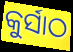
କୁର୍ସାଠ